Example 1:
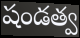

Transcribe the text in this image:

షండత్వ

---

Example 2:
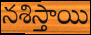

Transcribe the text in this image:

నశిస్తాయి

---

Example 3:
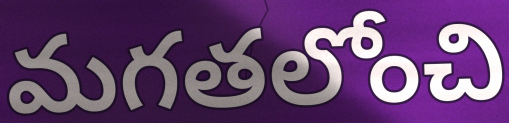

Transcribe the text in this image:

మగతలోంచి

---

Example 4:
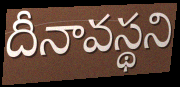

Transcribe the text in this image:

దీనావస్థని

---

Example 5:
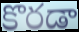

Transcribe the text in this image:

కొరడా